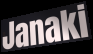
Janaki